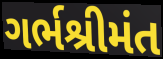
ગર્ભશ્રીમંત